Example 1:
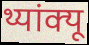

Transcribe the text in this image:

थ्यांक्यू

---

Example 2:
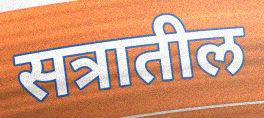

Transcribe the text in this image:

सत्रातील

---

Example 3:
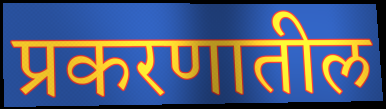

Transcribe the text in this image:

प्रकरणातील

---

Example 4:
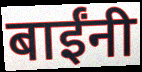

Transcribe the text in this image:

बाईंनी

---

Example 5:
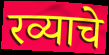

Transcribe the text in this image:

रव्याचे